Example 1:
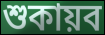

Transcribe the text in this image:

শুকায়ব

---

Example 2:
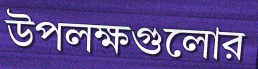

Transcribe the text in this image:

উপলক্ষগুলোর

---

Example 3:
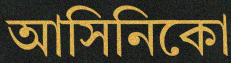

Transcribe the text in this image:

আসিনিকো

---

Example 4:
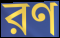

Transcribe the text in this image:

রণ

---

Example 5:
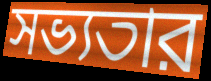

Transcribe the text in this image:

সভ্যতার